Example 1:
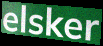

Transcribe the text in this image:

elsker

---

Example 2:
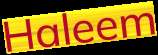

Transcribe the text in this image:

Haleem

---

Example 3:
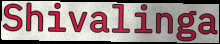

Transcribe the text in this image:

Shivalinga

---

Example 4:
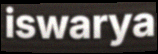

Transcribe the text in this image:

iswarya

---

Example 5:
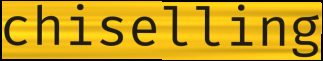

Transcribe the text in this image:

chiselling